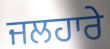
ਜਲਹਾਰੇ